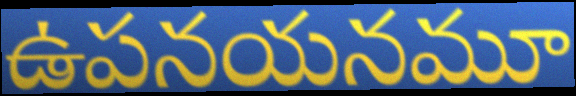
ఉపనయనమూ